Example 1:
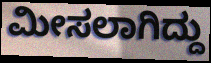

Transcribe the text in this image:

ಮೀಸಲಾಗಿದ್ದು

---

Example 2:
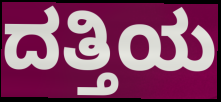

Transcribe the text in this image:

ದತ್ತಿಯ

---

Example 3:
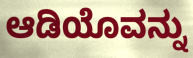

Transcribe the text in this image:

ಆಡಿಯೊವನ್ನು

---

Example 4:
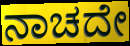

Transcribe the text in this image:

ನಾಚದೇ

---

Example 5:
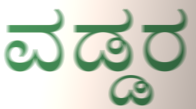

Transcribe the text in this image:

ವಡ್ಡರ